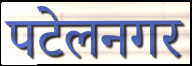
पटेलनगर